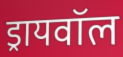
ड्रायवॉल